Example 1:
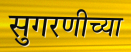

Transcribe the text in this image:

सुगरणीच्या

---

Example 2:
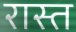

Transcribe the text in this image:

रास्त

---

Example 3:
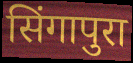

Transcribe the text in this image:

सिंगापुरा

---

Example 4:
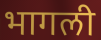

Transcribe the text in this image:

भागली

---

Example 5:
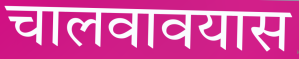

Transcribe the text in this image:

चालवावयास